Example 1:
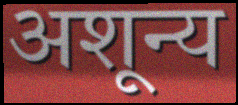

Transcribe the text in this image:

अशून्य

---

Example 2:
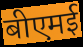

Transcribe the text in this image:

बीएमई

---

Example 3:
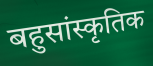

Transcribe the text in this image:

बहुसांस्कृतिक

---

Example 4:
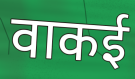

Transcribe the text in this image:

वाकई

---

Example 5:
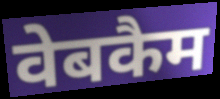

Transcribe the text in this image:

वेबकैम